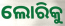
ଲୋରିକୁ